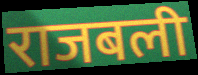
राजबली